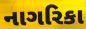
નાગરિકા